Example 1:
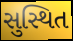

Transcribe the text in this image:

સુસ્થિત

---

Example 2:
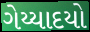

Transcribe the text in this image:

ગેય્યાદયો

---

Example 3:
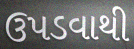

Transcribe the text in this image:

ઉપડવાથી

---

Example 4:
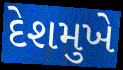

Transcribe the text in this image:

દેશમુખે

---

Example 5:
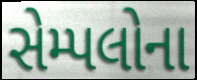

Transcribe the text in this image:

સેમ્પલોના